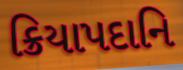
ક્રિયાપદાનિ